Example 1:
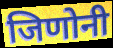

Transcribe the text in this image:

जिणोनी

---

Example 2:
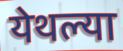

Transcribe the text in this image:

येथल्या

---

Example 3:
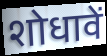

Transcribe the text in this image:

शोधावें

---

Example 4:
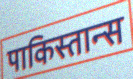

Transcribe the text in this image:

पाकिस्तान्स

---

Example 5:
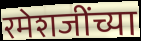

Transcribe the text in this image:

रमेशजींच्या